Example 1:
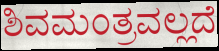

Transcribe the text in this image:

ಶಿವಮಂತ್ರವಲ್ಲದೆ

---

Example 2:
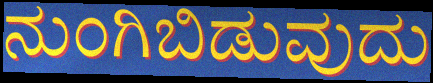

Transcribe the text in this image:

ನುಂಗಿಬಿಡುವುದು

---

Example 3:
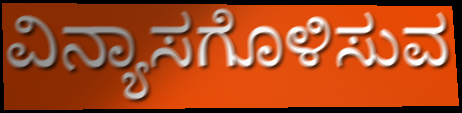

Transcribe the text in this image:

ವಿನ್ಯಾಸಗೊಳಿಸುವ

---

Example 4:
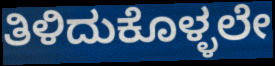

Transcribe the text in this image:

ತಿಳಿದುಕೊಳ್ಳಲೇ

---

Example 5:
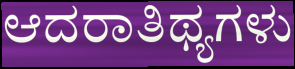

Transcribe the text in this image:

ಆದರಾತಿಥ್ಯಗಳು